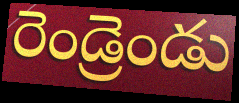
రెండ్రెండు